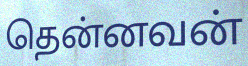
தென்னவன்